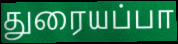
துரையப்பா